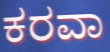
ಕರವಾ